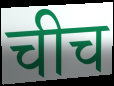
चीच